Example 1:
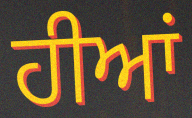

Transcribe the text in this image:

ਹੀਆਂ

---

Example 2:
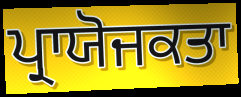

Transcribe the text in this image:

ਪ੍ਰਾਯੋਜਕਤਾ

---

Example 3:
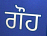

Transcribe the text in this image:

ਗੌਹ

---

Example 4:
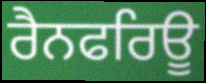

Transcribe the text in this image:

ਰੈਨਫਰਿਊ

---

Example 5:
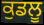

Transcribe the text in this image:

ਕੁਡਲੂ